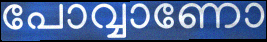
പോവ്വാണോ